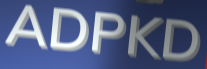
ADPKD